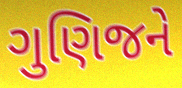
ગુણિજને